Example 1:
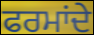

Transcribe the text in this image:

ਫਰਮਾਂਦੇ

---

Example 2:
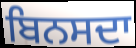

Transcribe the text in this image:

ਬਿਨਸਦਾ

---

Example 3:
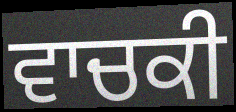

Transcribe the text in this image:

ਵਾਚਕੀ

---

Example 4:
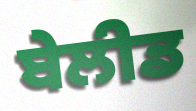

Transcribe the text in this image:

ਬੇਲੀਡ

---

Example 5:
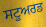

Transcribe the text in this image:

ਸਟੂਅਰਡ